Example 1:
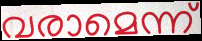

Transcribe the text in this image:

വരാമെന്ന്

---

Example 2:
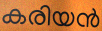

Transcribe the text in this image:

കരിയൻ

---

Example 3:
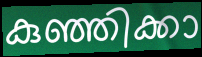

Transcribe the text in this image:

കുഞ്ഞിക്കാ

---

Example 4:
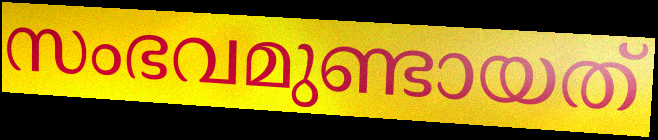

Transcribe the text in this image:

സംഭവമുണ്ടായത്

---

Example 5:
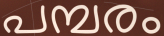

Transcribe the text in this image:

പമ്പരം